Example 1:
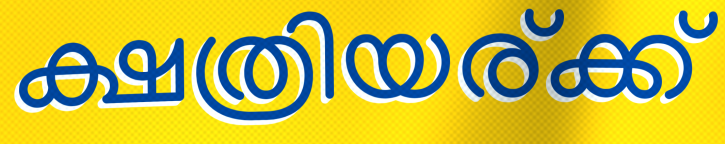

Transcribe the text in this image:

ക്ഷത്രിയര്ക്ക്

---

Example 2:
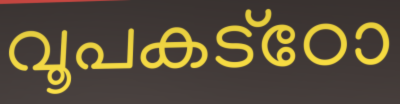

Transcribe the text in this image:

വൂപകട്ഠോ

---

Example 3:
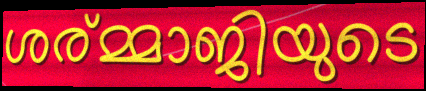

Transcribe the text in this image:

ശര്മ്മാജിയുടെ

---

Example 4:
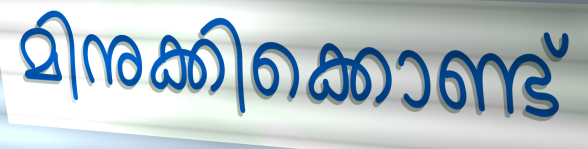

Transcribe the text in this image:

മിനുക്കിക്കൊണ്ട്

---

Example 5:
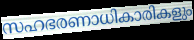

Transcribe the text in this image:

സഹഭരണാധികാരികളും